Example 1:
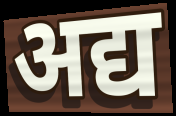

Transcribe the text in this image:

अद्य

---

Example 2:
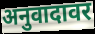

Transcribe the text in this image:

अनुवादावर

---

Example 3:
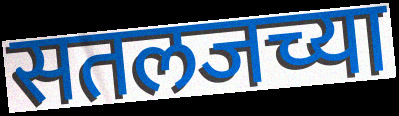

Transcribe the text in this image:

सतलजच्या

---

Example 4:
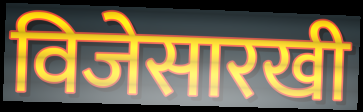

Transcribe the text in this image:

विजेसारखी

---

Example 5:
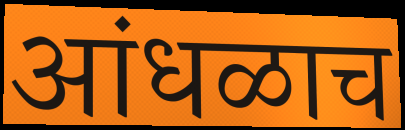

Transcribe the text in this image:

आंधळाच